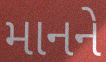
માનને